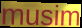
musim